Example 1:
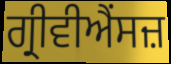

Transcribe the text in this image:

ਗ੍ਰੀਵੀਐਂਸਜ਼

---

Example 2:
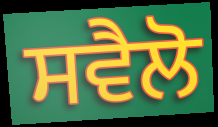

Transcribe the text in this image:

ਸਵੈਲੋ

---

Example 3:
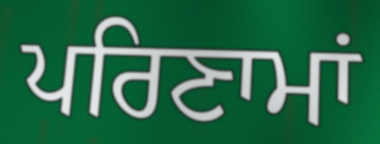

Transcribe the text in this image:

ਪਰਿਣਾਮਾਂ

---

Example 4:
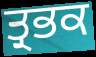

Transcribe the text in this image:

ਤ੍ਰਭਕ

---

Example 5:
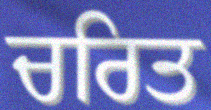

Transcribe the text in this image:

ਚਰਿਤ